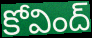
కోవింద్